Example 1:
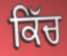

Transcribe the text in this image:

ਕਿੱਚ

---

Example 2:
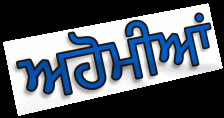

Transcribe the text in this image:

ਅਹੋਮੀਆਂ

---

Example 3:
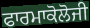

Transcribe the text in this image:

ਫਾਰਮਾਕੋਲੋਜੀ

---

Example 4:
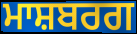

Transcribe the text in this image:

ਮਾਸ਼ਬਰਗ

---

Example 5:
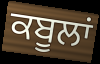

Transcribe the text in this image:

ਕਬੂਲਾਂ